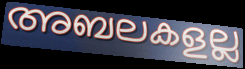
അബലകളല്ല